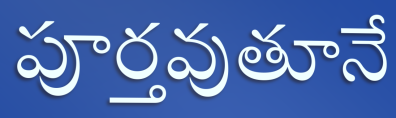
పూర్తవుతూనే